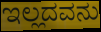
ಇಲ್ಲದವನು